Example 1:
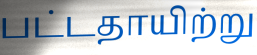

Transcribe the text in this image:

பட்டதாயிற்று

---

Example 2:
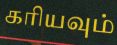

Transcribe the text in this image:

கரியவும்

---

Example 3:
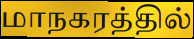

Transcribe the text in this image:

மாநகரத்தில்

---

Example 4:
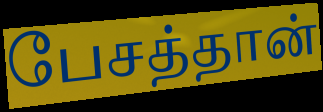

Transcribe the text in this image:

பேசத்தான்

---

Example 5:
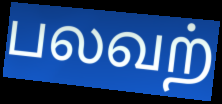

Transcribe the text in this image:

பலவற்